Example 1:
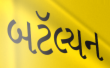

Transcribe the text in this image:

બટૅલ્યન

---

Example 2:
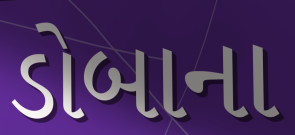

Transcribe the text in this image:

ડોબાના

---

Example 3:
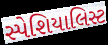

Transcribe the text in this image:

સ્પેશિયાલિસ્ટ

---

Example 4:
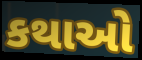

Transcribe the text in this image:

કથાઓ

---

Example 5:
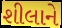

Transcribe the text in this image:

શીલાને